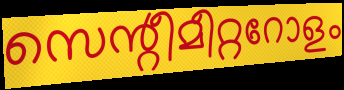
സെന്റീമീറ്ററോളം